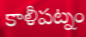
కాళీపట్నం